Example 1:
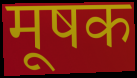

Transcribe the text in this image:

मूषक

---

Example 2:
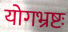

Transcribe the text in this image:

योगभ्रष्टः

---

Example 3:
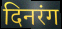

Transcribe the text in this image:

दिनरंग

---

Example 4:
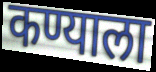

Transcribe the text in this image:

कण्याला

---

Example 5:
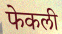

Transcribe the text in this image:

फेकली